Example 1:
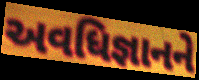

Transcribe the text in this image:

અવધિજ્ઞાનને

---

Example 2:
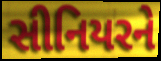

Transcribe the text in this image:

સીનિયરને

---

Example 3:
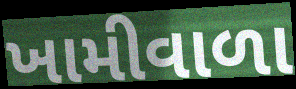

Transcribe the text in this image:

ખામીવાળા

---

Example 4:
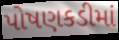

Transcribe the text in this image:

પોષણકડીમાં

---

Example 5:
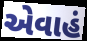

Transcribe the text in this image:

એવાહં